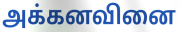
அக்கனவினை